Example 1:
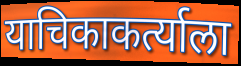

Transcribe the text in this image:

याचिकाकर्त्याला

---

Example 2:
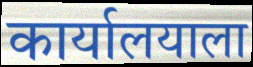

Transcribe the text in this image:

कार्यालयाला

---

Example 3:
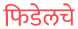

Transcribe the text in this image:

फिडेलचे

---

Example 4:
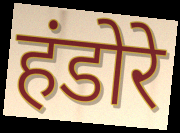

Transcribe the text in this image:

हंडोरे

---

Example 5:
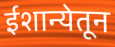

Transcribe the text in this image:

ईशान्येतून